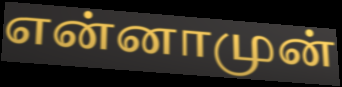
என்னாமுன்